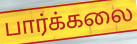
பார்க்கலை